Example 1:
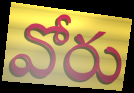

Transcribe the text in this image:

వోరు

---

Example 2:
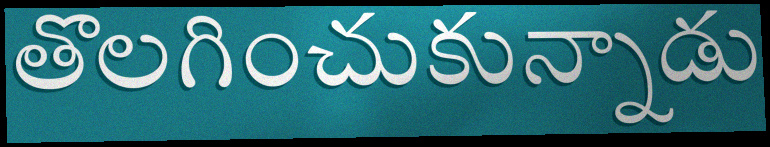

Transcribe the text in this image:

తొలగించుకున్నాడు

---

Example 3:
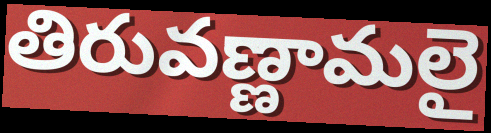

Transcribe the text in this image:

తిరువణ్ణామలై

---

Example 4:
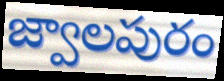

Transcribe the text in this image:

జ్వాలపురం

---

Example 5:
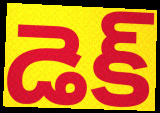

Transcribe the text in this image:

డెక్